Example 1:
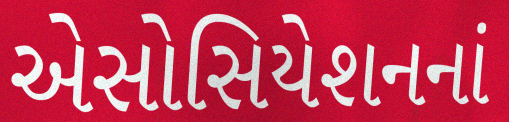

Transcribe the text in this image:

એસોસિયેશનનાં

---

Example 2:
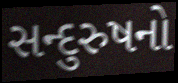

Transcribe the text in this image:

સન્દુરુષનો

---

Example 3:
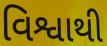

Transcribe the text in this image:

વિશ્વાથી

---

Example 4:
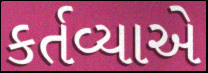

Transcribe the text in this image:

કર્તવ્યાએ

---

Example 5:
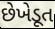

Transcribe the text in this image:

છેખેડૂત